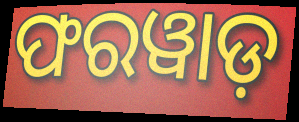
ଫରୱାଡ଼